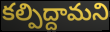
కల్పిద్దామని